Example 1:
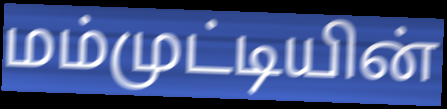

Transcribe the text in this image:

மம்முட்டியின்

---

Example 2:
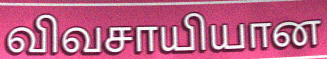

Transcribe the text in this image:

விவசாயியான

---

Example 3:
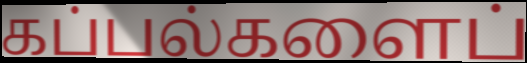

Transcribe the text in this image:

கப்பல்களைப்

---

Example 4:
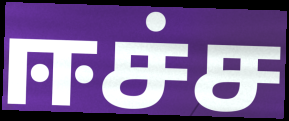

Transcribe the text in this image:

ஈச்ச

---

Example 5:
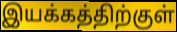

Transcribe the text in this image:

இயக்கத்திற்குள்